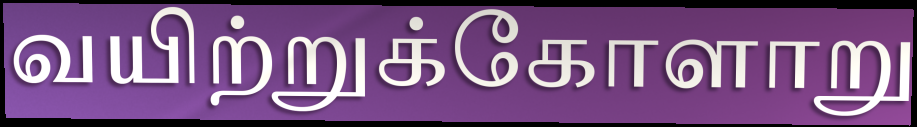
வயிற்றுக்கோளாறு